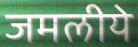
जमलीये